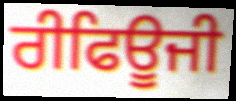
ਰੀਫਿਊਜੀ